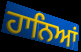
ਹਾਨਿਆਂ